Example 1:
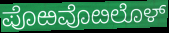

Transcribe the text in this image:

ಪೊಱವೊೞಲೊಳ್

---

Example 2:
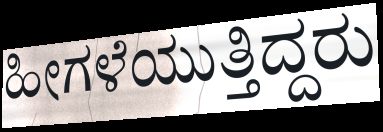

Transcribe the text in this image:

ಹೀಗಳೆಯುತ್ತಿದ್ದರು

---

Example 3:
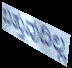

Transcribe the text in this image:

ಬತ್ತುವುದಿಲ್ಲ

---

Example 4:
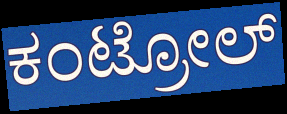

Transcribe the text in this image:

ಕಂಟ್ರೋಲ್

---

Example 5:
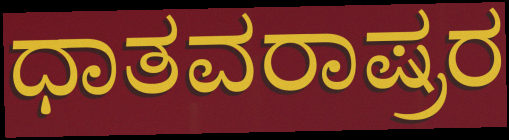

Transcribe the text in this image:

ಧಾತವರಾಷ್ರರ